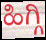
ಹಿಗ್ಗಿ